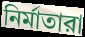
নির্মাতারা